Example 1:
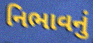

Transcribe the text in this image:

નિભાવનું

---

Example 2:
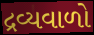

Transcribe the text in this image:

દ્રવ્યવાળો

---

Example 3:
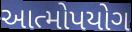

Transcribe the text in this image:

આત્મોપયોગ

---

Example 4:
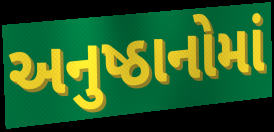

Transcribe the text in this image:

અનુષ્ઠાનોમાં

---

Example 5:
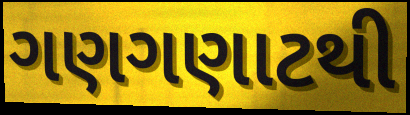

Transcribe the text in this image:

ગણગણાટથી